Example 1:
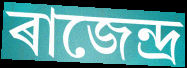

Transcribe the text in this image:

ৰাজেন্দ্ৰ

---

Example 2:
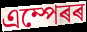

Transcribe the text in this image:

এম্পেৰৰ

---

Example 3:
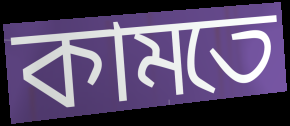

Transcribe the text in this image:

কামতে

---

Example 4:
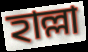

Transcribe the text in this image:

হাল্লা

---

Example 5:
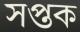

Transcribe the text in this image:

সপ্তক